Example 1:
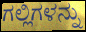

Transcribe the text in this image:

ಗಲ್ಲಿಗಳನ್ನು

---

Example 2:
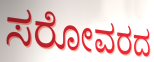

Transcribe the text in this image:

ಸರೋವರದ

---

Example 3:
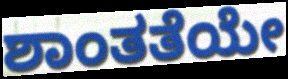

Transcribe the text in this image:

ಶಾಂತತೆಯೇ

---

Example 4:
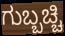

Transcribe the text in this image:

ಗುಬ್ಬಚ್ಚಿ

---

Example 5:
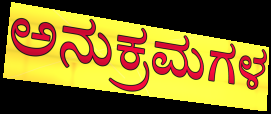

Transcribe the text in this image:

ಅನುಕ್ರಮಗಳ